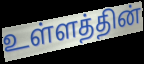
உள்ளத்தின்